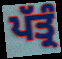
ਪੱਤ੍ਰੰ